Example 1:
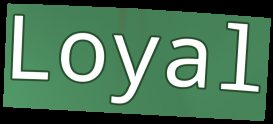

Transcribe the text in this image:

Loyal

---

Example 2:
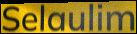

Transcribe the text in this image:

Selaulim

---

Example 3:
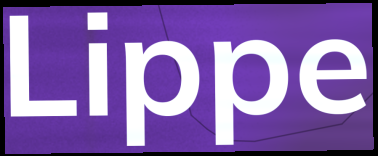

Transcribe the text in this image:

Lippe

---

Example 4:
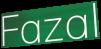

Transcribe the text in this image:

Fazal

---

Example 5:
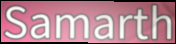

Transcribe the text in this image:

Samarth